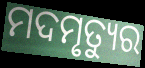
ମଦମୃତ୍ୟୁର